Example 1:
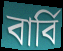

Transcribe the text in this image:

বার্বি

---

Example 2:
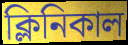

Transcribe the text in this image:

ক্লিনিকাল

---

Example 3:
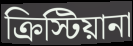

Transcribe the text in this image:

ক্রিস্টিয়ানা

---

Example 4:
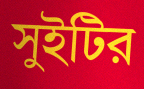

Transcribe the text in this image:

সুইটির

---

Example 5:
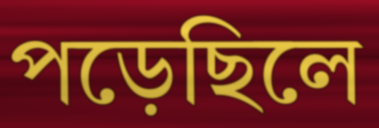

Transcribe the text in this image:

পড়েছিলে